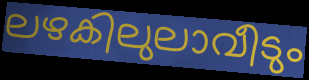
ലഴകിലുലാവീടും